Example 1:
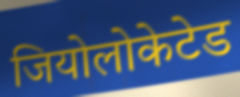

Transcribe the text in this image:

जियोलोकेटेड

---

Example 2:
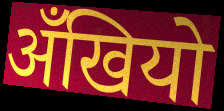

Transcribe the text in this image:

अँखियो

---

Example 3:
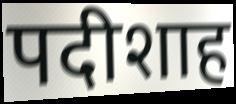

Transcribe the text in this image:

पदीशाह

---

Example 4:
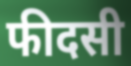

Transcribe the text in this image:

फीदसी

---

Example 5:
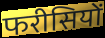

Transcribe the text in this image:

फरीसियों